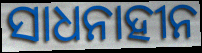
ସାଧନାହୀନ